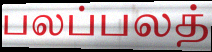
பலப்பலத்